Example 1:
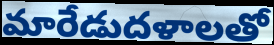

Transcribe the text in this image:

మారేడుదళాలతో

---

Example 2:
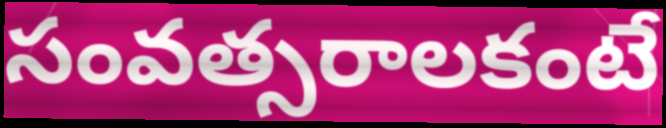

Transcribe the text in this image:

సంవత్సరాలకంటే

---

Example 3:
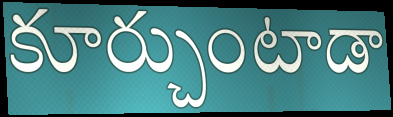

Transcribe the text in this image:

కూర్చుంటాడా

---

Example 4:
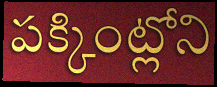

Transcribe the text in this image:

పక్కింట్లోని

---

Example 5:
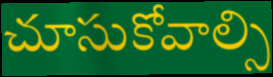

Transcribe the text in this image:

చూసుకోవాల్సి